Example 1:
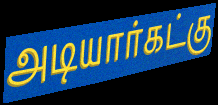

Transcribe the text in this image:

அடியார்கட்கு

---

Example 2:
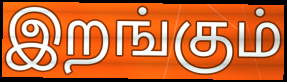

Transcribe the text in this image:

இறங்கும்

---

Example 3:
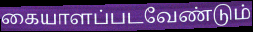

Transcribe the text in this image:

கையாளப்படவேண்டும்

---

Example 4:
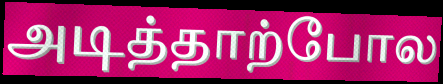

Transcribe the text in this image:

அடித்தாற்போல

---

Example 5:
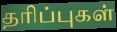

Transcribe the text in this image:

தரிப்புகள்